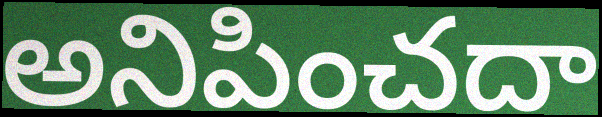
అనిపించదా